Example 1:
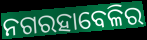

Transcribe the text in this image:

ନଗରହାବେଳିର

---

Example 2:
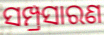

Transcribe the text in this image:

ସମ୍ପ୍ରସାରଣ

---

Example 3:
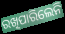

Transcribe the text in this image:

ରଖିପାରିଲେନି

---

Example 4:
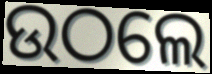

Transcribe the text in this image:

ଉଠଲେ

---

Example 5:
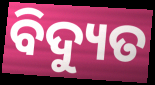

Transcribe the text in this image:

ବିଦ୍ୟୁତ